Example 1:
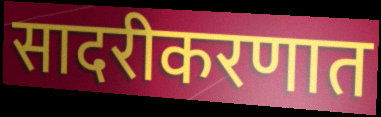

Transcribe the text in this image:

सादरीकरणात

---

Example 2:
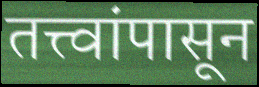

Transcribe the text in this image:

तत्त्वांपासून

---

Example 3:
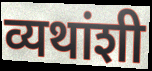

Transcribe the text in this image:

व्यथांशी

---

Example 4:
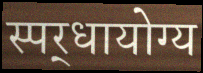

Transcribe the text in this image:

स्पर्धायोग्य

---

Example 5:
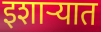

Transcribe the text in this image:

इशाऱ्यात